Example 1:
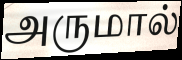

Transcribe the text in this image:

அருமால்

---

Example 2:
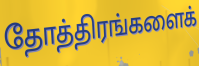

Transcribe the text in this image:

தோத்திரங்களைக்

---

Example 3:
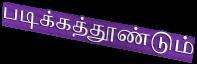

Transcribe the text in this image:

படிக்கத்தூண்டும்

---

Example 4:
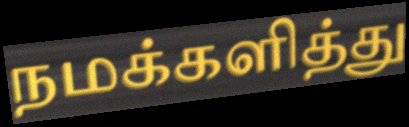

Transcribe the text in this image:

நமக்களித்து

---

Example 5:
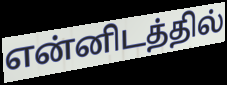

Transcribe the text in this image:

என்னிடத்தில்